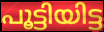
പൂട്ടിയിട്ട